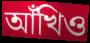
আঁখিও